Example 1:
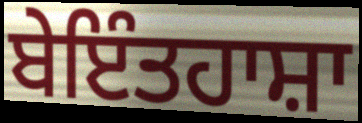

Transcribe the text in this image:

ਬੇਇੰਤਹਾਸ਼ਾ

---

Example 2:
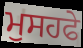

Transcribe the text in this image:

ਮੁਸਹਫੇ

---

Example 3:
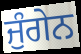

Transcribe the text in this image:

ਜੁੰਗੇਨ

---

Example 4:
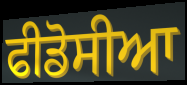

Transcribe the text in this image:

ਫੀਡੋਸੀਆ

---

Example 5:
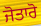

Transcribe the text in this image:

ਜੋਤਾਰੋ